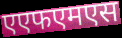
एएफएमएस